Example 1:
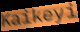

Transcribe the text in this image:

Kaikeyi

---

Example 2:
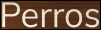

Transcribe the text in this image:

Perros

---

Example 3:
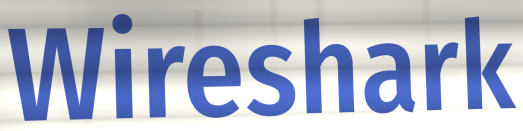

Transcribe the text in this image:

Wireshark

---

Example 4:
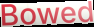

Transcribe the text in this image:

Bowed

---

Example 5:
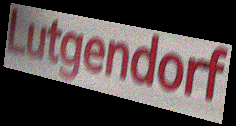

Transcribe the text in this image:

Lutgendorf